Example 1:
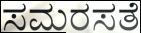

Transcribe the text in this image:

ಸಮರಸತೆ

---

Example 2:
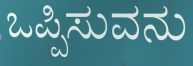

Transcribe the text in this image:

ಒಪ್ಪಿಸುವನು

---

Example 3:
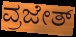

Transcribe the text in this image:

ವ್ರಜೇತ್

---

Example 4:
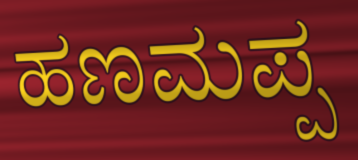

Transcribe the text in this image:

ಹಣಮಪ್ಪ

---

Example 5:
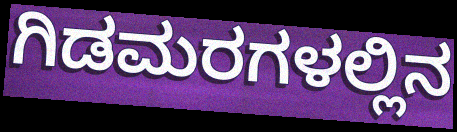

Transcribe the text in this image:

ಗಿಡಮರಗಳಲ್ಲಿನ